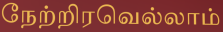
நேற்றிரவெல்லாம்